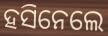
ହସିନେଲେ